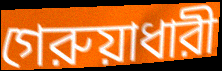
গেরুয়াধারী